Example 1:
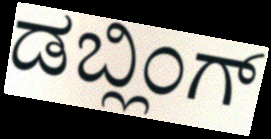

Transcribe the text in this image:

ಡಬ್ಲಿಂಗ್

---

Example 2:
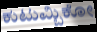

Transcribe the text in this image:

ಕುಟುಮ್ಬಿಕೋ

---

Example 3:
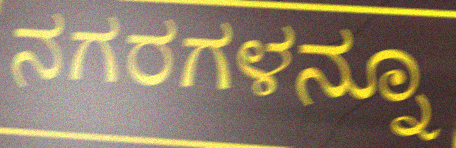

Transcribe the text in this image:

ನಗರಗಳನ್ನೂ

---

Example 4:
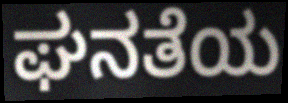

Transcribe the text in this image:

ಘನತೆಯ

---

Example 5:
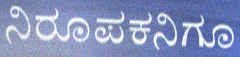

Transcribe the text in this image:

ನಿರೂಪಕನಿಗೂ